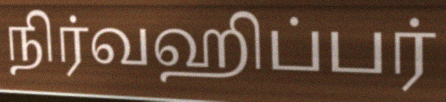
நிர்வஹிப்பர்